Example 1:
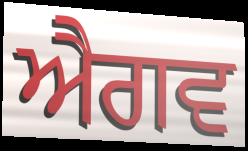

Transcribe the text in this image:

ਐਗਵ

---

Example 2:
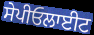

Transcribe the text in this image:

ਸੇਪੀਓਲਾਈਟ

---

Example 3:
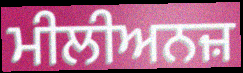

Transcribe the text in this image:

ਮੀਲੀਅਨਜ਼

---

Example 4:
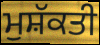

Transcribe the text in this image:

ਮੁਸ਼ੱਕਤੀ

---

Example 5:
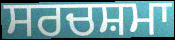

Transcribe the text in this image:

ਸਰਚਸ਼ਮਾ